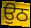
ਉਠ